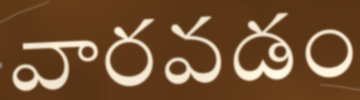
వారవడం